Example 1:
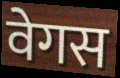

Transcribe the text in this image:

वेगस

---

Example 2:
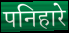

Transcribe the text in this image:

पनिहारे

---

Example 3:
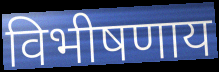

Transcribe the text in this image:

विभीषणाय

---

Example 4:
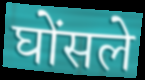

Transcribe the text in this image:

घोंसले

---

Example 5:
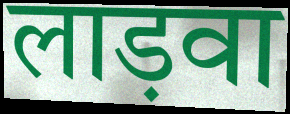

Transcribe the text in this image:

लाड़वा